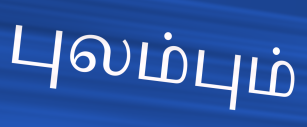
புலம்பும்